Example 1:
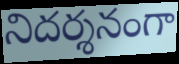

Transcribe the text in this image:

నిదర్శనంగా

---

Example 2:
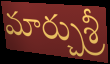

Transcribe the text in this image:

మార్చుశ్రీ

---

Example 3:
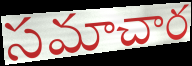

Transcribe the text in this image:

సమాచార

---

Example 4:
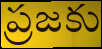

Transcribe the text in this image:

ప్రజకు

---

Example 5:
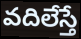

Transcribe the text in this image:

వదిలేస్తే